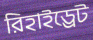
রিহাইড্রেট